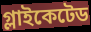
গ্লাইকেটেড